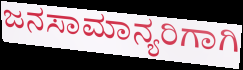
ಜನಸಾಮಾನ್ಯರಿಗಾಗಿ